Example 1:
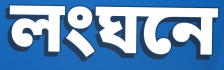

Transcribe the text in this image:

লংঘনে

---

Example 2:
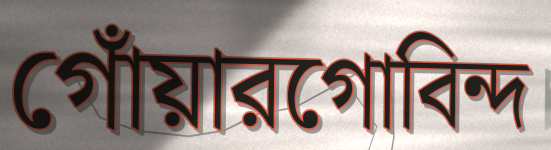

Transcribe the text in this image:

গোঁয়ারগোবিন্দ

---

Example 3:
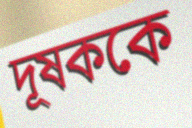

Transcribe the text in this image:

দূষককে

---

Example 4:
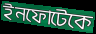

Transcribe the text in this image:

ইনফোটেকে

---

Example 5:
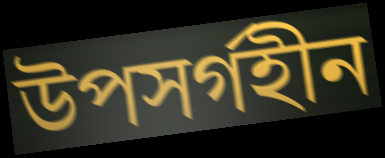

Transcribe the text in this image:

উপসর্গহীন